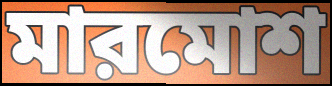
মারমোশ